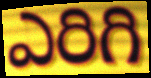
ఎరిగి